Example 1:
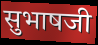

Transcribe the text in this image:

सुभाषजी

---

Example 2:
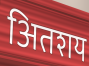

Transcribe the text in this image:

अितशय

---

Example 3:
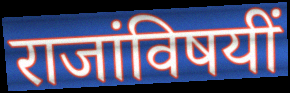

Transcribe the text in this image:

राजांविषयीं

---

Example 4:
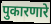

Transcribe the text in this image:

पुकारणारे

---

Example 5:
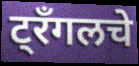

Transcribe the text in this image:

ट्रँगलचे